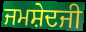
ਜਮਸ਼ੇਦਜੀ